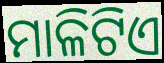
ମାଳିଟିଏ